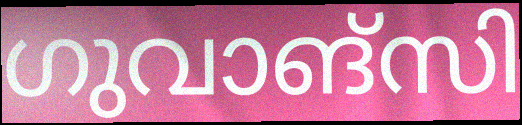
ഗുവാങ്സി